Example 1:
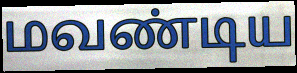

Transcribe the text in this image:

மவண்டிய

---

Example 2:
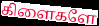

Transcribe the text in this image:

கிளைகளே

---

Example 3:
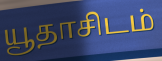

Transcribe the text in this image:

யூதாசிடம்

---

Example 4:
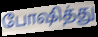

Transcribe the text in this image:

போஷித்து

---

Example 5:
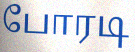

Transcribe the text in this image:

போரடி